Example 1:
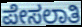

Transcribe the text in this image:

ಪೇಸಲಾತಿ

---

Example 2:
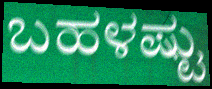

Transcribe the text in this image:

ಬಹಳಷ್ಟು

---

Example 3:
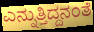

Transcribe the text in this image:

ಎನ್ನುತ್ತಿದ್ದನಂತೆ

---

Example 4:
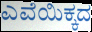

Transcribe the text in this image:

ಎವೆಯಿಕ್ಕದ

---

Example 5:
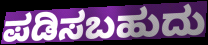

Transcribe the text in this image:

ಪಡಿಸಬಹುದು